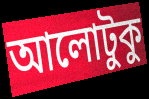
আলোটুকু